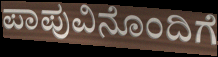
ಪಾಪುವಿನೊಂದಿಗೆ